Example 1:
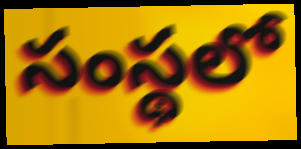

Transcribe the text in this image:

సంస్థలో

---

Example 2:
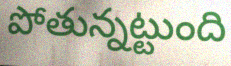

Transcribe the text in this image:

పోతున్నట్టుంది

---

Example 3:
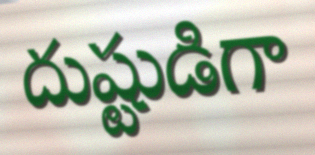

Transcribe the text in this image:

దుష్టుడిగా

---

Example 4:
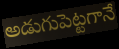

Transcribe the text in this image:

అడుగుపెట్టగానే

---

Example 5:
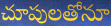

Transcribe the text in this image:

చూపులతోనూ